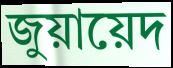
জুয়ায়েদ